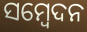
ସମ୍ଵେଦନ